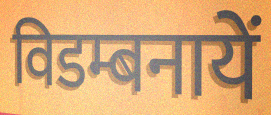
विडम्बनायें